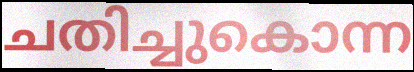
ചതിച്ചുകൊന്ന